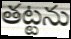
తట్టను